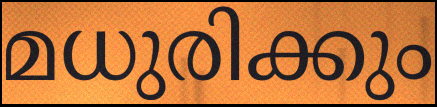
മധുരിക്കും